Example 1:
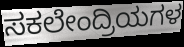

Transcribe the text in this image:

ಸಕಲೇಂದ್ರಿಯಗಳ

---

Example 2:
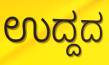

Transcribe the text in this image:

ಉದ್ದದ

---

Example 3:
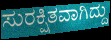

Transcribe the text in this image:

ಸುರಕ್ಷಿತವಾಗಿದ್ದು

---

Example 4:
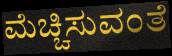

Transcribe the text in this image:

ಮೆಚ್ಚಿಸುವಂತೆ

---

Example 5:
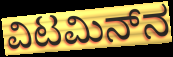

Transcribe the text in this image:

ವಿಟಮಿನ್‌ನ